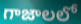
గాజాలలో